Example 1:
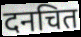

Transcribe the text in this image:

दनचित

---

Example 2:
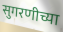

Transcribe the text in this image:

सुगरणीच्या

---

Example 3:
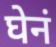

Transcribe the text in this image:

घेनं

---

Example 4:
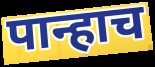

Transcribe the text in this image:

पान्हाच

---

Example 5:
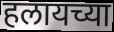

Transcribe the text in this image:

हलायच्या